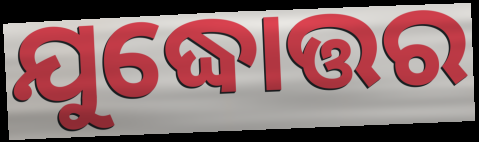
ଯୁଦ୍ଧୋତ୍ତର